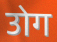
उोग